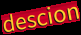
descion